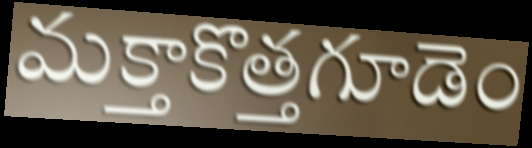
మక్తాకొత్తగూడెం